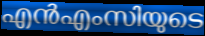
എൻഎംസിയുടെ